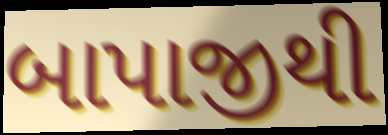
બાપાજીથી